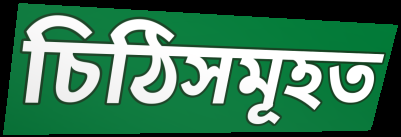
চিঠিসমূহত